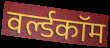
वर्ल्डकॉम